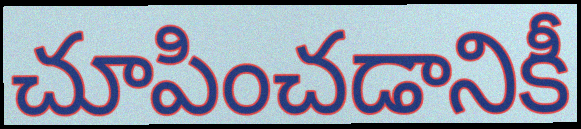
చూపించడానికీ